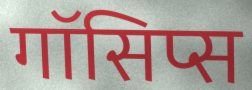
गॉसिप्स